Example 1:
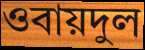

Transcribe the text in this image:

ওবায়দুল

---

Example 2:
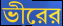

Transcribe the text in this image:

ভীরের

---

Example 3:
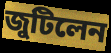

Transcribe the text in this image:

জুটিলেন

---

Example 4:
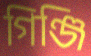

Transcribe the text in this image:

গিঞ্জি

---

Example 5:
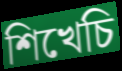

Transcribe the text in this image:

শিখেচি